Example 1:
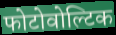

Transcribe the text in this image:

फोटोवोल्टिक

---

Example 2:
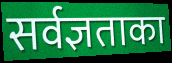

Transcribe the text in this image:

सर्वज्ञताका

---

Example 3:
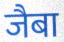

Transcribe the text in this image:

जैबा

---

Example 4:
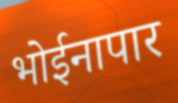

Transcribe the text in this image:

भोईनापार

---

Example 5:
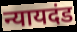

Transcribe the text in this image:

न्यायदंड